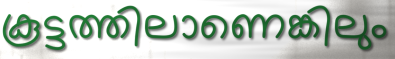
കൂട്ടത്തിലാണെങ്കിലും